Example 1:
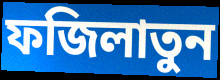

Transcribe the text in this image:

ফজিলাতুন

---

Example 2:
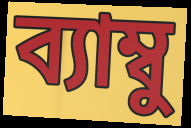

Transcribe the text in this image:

ব্যাম্বু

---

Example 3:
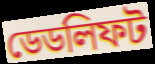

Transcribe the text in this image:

ডেডলিফট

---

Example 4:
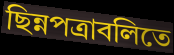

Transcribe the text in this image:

ছিন্নপত্রাবলিতে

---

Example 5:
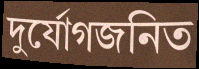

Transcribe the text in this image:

দুর্যোগজনিত